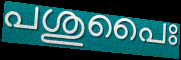
പശുപൈഃ